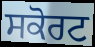
ਸਕੋਰਟ